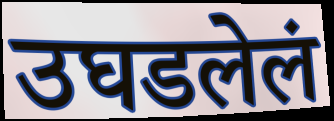
उघडलेलं